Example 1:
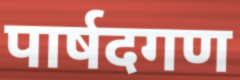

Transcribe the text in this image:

पार्षदगण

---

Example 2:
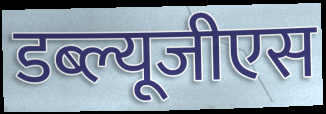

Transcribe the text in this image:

डब्ल्यूजीएस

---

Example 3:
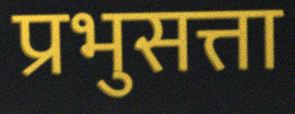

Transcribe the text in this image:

प्रभुसत्ता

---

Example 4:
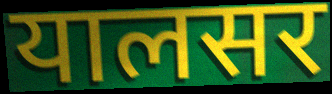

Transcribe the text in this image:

यालसर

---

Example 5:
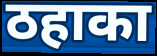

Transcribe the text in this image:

ठहाका